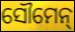
ସୌମେନ୍